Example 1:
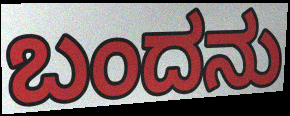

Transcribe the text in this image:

ಬಂದನು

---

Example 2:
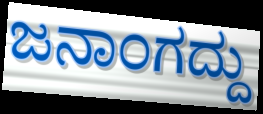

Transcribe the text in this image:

ಜನಾಂಗದ್ದು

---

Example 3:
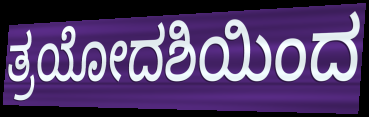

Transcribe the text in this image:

ತ್ರಯೋದಶಿಯಿಂದ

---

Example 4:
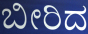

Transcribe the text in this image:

ಬೀರಿದ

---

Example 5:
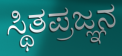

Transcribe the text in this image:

ಸ್ಥಿತಪ್ರಜ್ಞನ